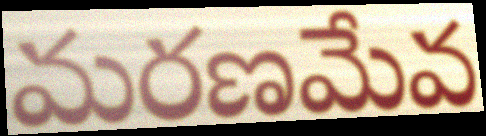
మరణమేవ